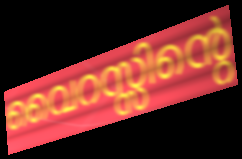
വൈറസ്സിന്റെ